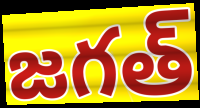
జగత్